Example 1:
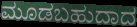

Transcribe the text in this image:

ಮೂಡಬಹುದಾದ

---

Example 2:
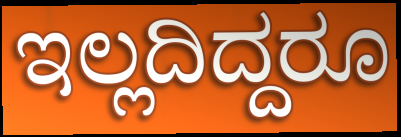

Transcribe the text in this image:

ಇಲ್ಲದಿದ್ದರೂ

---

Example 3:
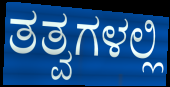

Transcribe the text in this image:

ತತ್ವಗಳಲ್ಲಿ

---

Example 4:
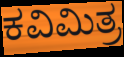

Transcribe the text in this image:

ಕವಿಮಿತ್ರ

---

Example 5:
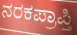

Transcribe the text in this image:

ನರಕಪ್ರಾಪ್ತಿ